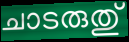
ചാടരുതു്